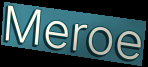
Meroe